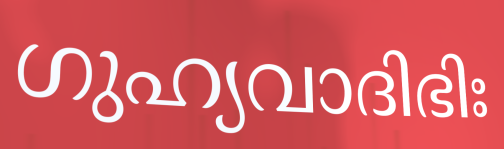
ഗുഹ്യവാദിഭിഃ